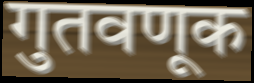
गुतवणूक